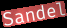
Sandel